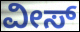
ವೀಸ್